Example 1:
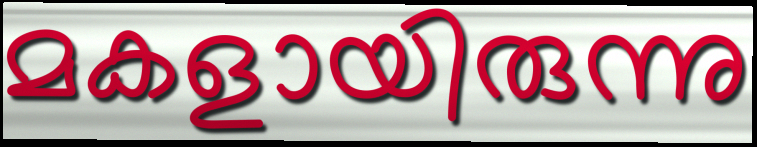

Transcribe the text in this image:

മകളായിരുന്നു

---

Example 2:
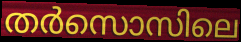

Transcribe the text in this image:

തർസൊസിലെ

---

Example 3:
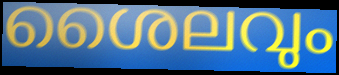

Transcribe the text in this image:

ശൈലവും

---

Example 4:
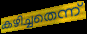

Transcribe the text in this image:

കഴിച്ചതെന്ന്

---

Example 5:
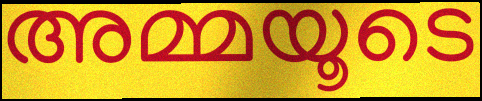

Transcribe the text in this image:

അമ്മയൂടെ